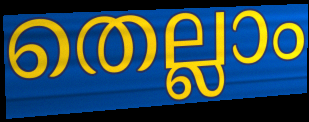
തെല്ലാം